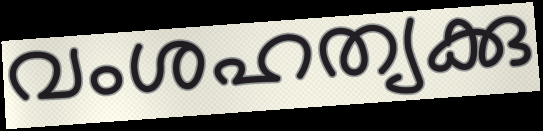
വംശഹത്യക്കു